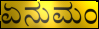
ಏನುಮಂ